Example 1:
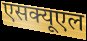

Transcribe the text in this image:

एसक्यूएल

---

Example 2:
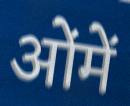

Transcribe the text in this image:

ओंमें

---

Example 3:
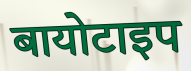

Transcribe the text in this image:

बायोटाइप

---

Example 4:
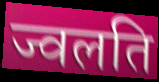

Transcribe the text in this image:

ज्वलति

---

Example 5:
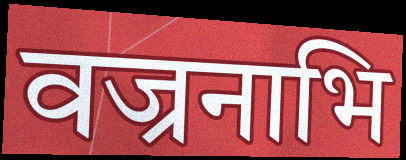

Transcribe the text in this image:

वज्रनाभि